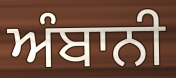
ਅੰਬਾਨੀ